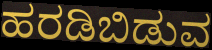
ಹರಡಿಬಿಡುವ